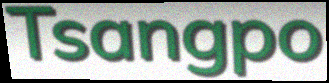
Tsangpo